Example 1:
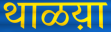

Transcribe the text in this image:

थाळय़ा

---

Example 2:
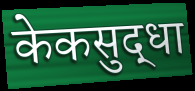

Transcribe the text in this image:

केकसुद्धा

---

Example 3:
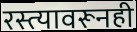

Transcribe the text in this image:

रस्त्यावरूनही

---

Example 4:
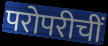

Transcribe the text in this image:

परोपरीचीं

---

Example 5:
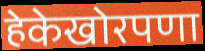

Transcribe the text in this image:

हेकेखोरपणा